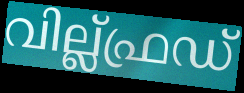
വില്ല്ഫ്രഡ്